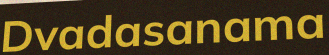
Dvadasanama